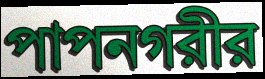
পাপনগরীর